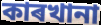
কাৰখানা